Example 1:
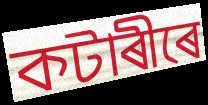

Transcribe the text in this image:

কটাৰীৰে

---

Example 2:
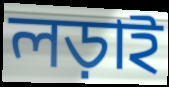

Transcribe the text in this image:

লড়াই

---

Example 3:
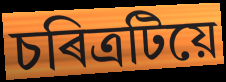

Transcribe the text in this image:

চৰিত্ৰটিয়ে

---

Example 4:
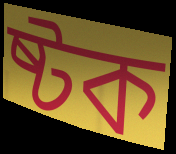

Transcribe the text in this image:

ষ্টক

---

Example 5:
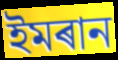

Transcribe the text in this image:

ইমৰান